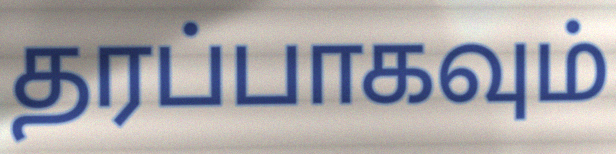
தரப்பாகவும்